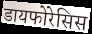
डायफोरेसिस